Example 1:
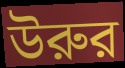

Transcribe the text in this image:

উরুর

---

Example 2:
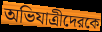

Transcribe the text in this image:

অভিযাত্রীদেরকে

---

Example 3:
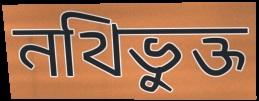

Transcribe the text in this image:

নথিভুক্ত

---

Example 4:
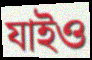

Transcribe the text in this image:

যাইও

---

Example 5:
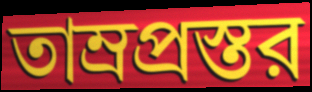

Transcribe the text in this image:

তাম্রপ্রস্তর